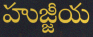
హుజ్జీయ